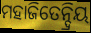
ମହାଜିତେନ୍ଦ୍ରିୟ